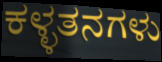
ಕಳ್ಳತನಗಳು